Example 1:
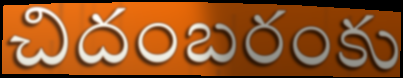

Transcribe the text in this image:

చిదంబరంకు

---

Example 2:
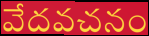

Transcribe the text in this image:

వేదవచనం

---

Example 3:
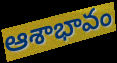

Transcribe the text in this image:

ఆశాభావం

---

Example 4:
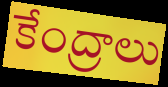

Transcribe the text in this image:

కేంద్రాలు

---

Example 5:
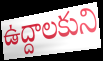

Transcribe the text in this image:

ఉద్దాలకుని